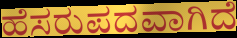
ಹೆಸರುಪದವಾಗಿದೆ